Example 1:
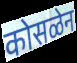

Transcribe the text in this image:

कोसळेन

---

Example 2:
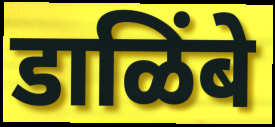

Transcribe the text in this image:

डाळिंबे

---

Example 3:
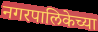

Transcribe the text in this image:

नगरपालिकेच्या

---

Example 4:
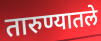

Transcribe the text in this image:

तारुण्यातले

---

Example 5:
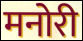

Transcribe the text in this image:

मनोरी